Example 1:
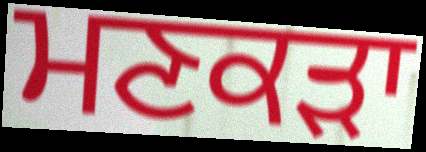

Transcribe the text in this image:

ਮਣਕੜਾ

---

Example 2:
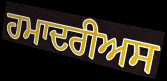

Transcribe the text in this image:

ਹਮਾਦਰੀਅਸ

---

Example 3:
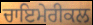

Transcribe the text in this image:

ਚਾਇਮੇਰੀਕਲ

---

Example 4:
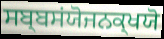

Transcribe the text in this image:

ਸਬ੍ਬਸਂਯੋਜਨਕ੍ਖਯੋ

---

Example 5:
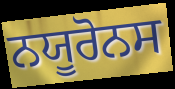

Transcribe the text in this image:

ਨਯੂਰੋਨਸ